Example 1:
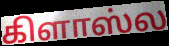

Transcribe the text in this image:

கிளாஸ்ல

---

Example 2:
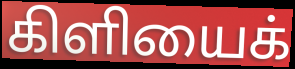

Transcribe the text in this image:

கிளியைக்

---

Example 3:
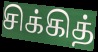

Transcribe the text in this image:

சிக்கித்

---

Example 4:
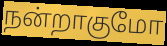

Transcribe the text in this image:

நன்றாகுமோ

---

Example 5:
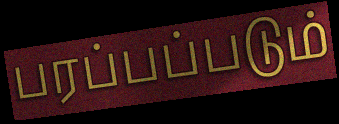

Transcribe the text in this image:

பரப்பப்படும்